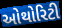
ઓથોરિટી